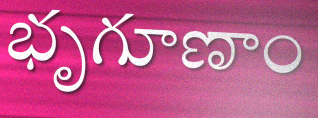
భృగూణాం